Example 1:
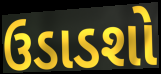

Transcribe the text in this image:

ઉડાડશો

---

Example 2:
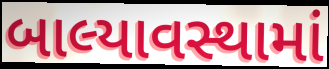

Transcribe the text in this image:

બાલ્યાવસ્થામાં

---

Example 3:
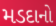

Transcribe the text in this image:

મડદાનો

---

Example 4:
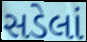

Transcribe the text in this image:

સડેલાં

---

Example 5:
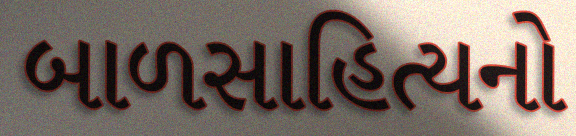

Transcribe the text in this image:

બાળસાહિત્યનો